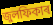
জুলফিকাৰ